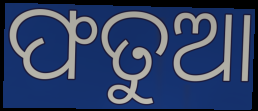
ଫତୁଆ